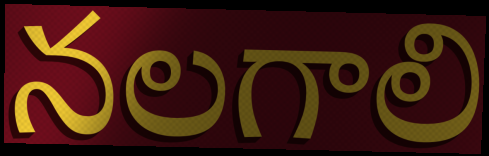
నలగాలి